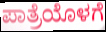
ಪಾತ್ರೆಯೊಳಗೆ